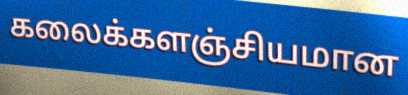
கலைக்களஞ்சியமான